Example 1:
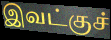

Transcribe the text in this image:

இவட்குச்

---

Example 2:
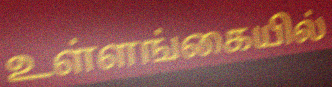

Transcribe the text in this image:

உள்ளங்கையில்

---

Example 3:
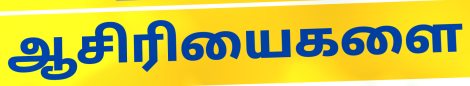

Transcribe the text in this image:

ஆசிரியைகளை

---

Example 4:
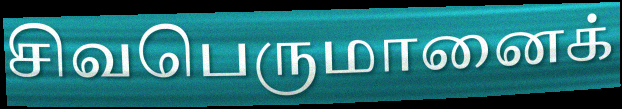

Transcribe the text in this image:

சிவபெருமானைக்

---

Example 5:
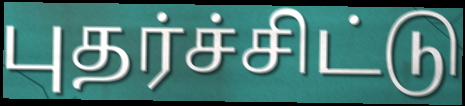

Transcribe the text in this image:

புதர்ச்சிட்டு